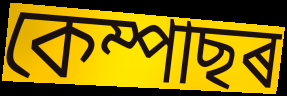
কেম্পাছৰ